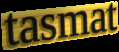
tasmat